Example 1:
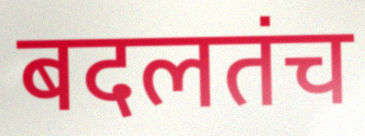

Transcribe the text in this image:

बदलतंच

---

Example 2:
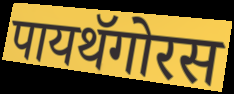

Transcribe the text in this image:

पायथॅगोरस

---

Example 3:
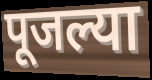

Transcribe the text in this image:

पूजल्या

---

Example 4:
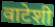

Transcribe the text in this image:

वाटेशी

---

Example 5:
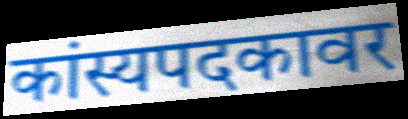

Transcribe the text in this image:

कांस्यपदकावर